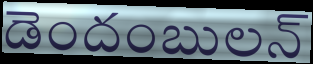
డెందంబులన్